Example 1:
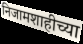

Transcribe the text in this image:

निजामशाहीच्या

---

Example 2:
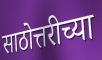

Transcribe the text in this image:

साठोत्तरीच्या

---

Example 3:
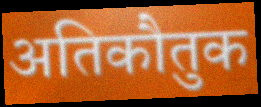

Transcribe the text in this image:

अतिकौतुक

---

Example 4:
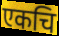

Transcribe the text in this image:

एकचि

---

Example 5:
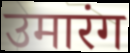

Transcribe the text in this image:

उमारंग